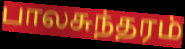
பாலசுந்தரம்